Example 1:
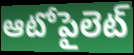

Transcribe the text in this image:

ఆటోపైలెట్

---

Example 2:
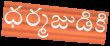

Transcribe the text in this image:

ధర్మజుడికి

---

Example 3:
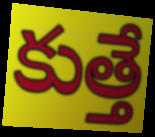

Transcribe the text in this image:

కుత్తే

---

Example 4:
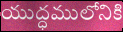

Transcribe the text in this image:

యుద్ధములోనికి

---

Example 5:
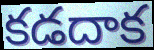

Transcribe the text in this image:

కడదాక